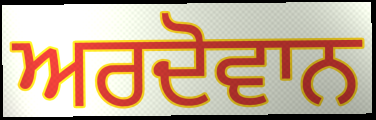
ਅਰਦੋਵਾਨ